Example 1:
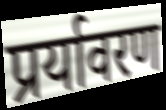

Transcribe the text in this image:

प्रर्यावरण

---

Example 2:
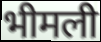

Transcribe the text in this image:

भीमली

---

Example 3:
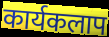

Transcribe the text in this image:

कार्यकलाप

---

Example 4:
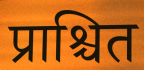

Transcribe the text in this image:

प्राश्चित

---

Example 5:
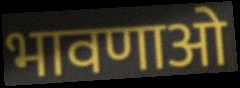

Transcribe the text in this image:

भावणाओ